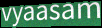
vyaasam